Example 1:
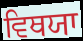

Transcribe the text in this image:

ਵਿਥਯਾ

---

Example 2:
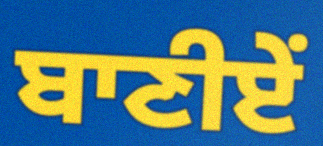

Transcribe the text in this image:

ਬਾਣੀਏਂ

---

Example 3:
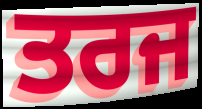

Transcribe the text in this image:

ਤਰਜ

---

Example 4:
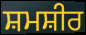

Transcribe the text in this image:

ਸ਼ਮਸ਼ੀਰ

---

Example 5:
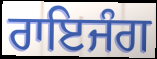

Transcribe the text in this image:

ਰਾਇਜੰਗ